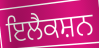
ਇਲੈਕਸ਼ਨ